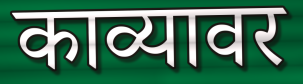
काव्यावर